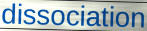
dissociation